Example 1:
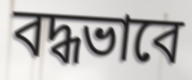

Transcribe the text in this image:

বদ্ধভাবে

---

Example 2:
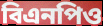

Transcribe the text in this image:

বিএনপিও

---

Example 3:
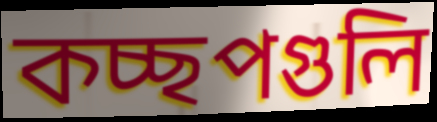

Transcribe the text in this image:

কচ্ছপগুলি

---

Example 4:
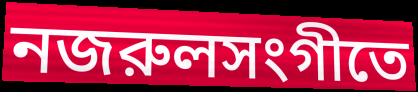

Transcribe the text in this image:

নজরুলসংগীতে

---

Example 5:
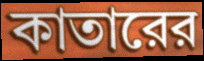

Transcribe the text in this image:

কাতারের